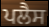
ਪਲੈਸ